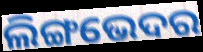
ଲିଙ୍ଗଭେଦର